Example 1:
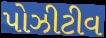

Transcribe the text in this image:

પોઝીટીવ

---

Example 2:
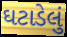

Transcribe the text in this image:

ઘટાડેલું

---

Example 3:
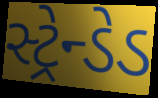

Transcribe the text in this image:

સ્ટ્રેન્ડેડ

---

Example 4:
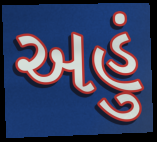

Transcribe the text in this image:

અહું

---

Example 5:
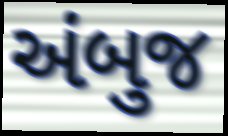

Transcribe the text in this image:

અંબુજ